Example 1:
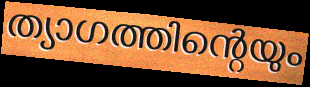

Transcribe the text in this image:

ത്യാഗത്തിന്റെയും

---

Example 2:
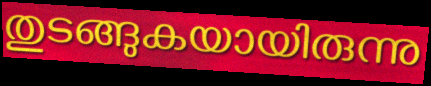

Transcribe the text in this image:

തുടങ്ങുകയായിരുന്നു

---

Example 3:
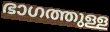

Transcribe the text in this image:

ഭാഗത്തുള്ള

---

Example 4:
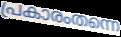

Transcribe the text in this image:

പ്രകാരംതന്നെ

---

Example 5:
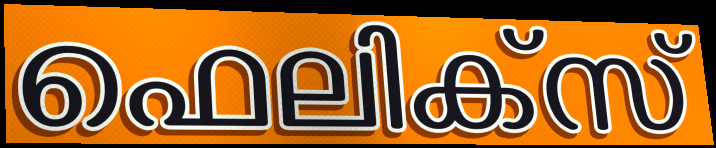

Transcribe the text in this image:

ഫെലിക്‌സ്